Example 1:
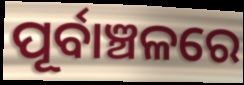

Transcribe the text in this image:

ପୂର୍ବାଞ୍ଚଳରେ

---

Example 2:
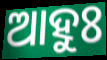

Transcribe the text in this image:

ଆହୁଃ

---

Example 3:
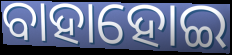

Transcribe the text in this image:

ବାହାହୋଇ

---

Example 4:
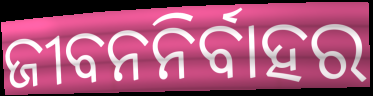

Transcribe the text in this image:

ଜୀବନନିର୍ବାହର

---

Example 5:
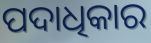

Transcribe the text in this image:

ପଦାଧିକାର